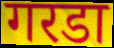
गरडा